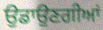
ਉਡਾਉਣਗੀਆਂ